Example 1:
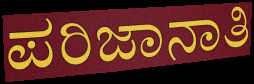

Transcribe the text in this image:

ಪರಿಜಾನಾತಿ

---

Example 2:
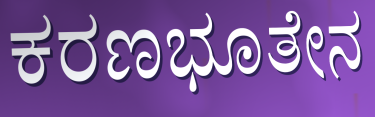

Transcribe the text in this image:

ಕರಣಭೂತೇನ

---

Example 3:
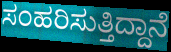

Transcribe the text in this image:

ಸಂಹರಿಸುತ್ತಿದ್ದಾನೆ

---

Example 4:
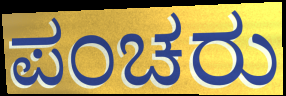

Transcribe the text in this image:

ಪಂಚರು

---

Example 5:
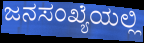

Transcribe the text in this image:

ಜನಸಂಖ್ಯೆಯಲ್ಲಿ